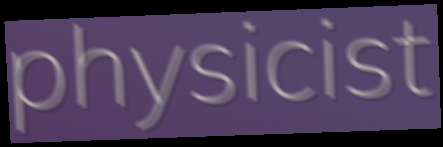
physicist